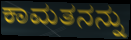
ಕಾಮತನನ್ನು